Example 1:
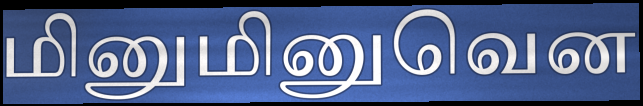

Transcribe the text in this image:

மினுமினுவென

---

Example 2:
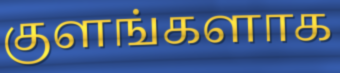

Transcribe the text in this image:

குளங்களாக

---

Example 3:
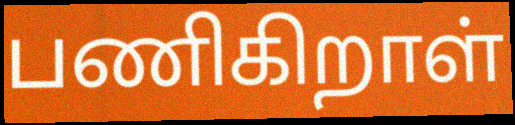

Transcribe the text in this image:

பணிகிறாள்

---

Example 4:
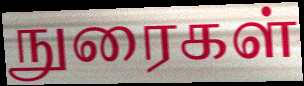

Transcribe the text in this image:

நுரைகள்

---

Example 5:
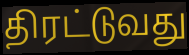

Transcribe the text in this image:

திரட்டுவது